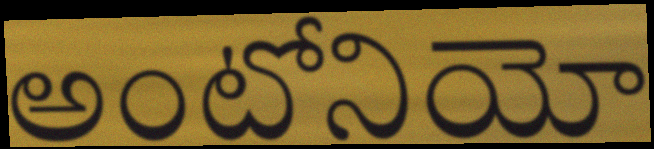
అంటోనియో